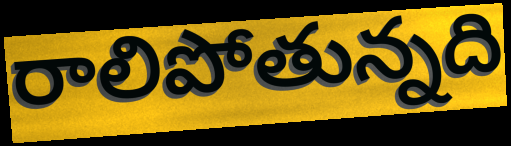
రాలిపోతున్నది